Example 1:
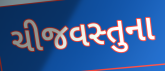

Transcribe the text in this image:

ચીજવસ્તુના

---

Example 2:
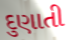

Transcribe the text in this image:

દુણાતી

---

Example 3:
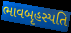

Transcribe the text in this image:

ભાવબૃહસ્પતિ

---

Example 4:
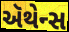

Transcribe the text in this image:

ઍથેન્સ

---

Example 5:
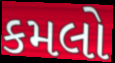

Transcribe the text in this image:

કમલો